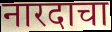
नारदाचा